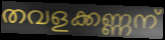
തവളക്കണ്ണന്